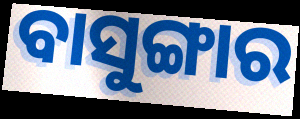
ବାସୁଙ୍ଗାର